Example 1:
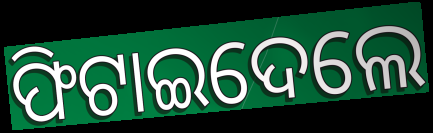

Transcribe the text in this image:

ଫିଟାଇଦେଲେ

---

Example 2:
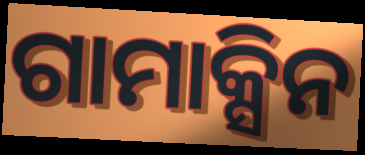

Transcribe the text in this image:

ଗାମାକ୍ସିନ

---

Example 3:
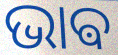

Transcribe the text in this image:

ଭାଵ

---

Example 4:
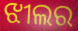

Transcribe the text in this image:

ଝୀଲର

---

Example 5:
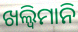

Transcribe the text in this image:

ଖଲ୍ୱିମାନି